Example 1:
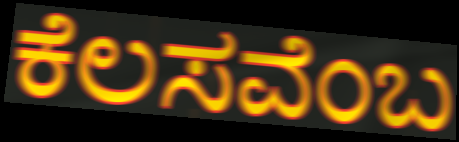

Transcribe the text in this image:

ಕೆಲಸವೆಂಬ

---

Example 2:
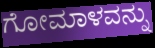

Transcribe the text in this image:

ಗೋಮಾಳವನ್ನು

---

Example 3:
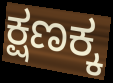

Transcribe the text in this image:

ಕ್ಷಣಕ್ಕ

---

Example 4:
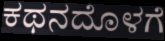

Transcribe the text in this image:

ಕಥನದೊಳಗೆ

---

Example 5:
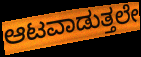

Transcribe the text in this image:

ಆಟವಾಡುತ್ತಲೇ